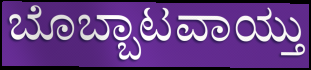
ಬೊಬ್ಬಾಟವಾಯ್ತು